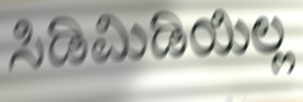
ಸಿಡಿಮಿಡಿಯಿಲ್ಲ